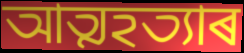
আত্মহত্যাৰ